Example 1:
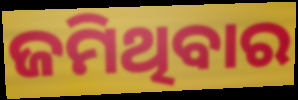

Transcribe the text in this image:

ଜମିଥିବାର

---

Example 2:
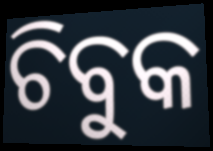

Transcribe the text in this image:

ଚିବୁକ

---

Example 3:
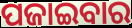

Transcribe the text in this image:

ପଜାଇବାର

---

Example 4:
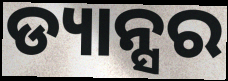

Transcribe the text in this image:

ଡ୍ୟାନ୍ସର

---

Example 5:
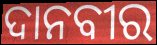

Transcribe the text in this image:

ଦାନବୀର